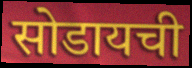
सोडायची